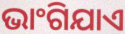
ଭାଂଗିଯାଏ